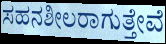
ಸಹನಶೀಲರಾಗುತ್ತೇವೆ